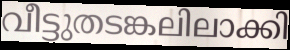
വീട്ടുതടങ്കലിലാക്കി